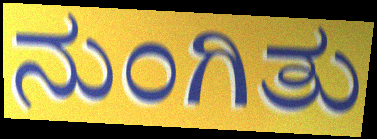
ನುಂಗಿತು